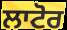
ਲਾਟੋਰ